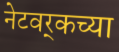
नेटवर्कच्या